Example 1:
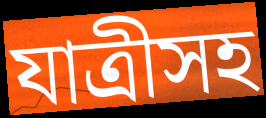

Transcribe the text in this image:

যাত্রীসহ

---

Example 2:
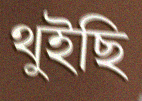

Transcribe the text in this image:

থুইছি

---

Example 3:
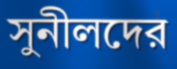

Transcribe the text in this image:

সুনীলদের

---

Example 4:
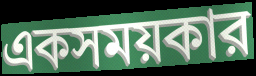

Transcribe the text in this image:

একসময়কার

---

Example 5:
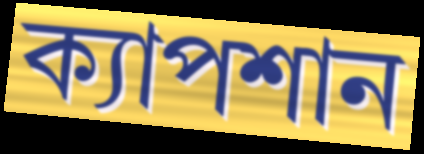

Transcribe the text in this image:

ক্যাপশান